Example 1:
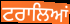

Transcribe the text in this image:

ਟਰਾਲਿਆਂ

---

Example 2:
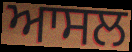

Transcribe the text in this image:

ਆਸਲ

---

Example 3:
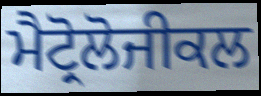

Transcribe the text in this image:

ਮੈਟ੍ਰੋਲੋਜੀਕਲ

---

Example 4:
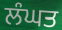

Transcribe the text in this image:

ਲੰਘਤ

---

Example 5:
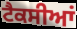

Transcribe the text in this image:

ਟੈਕਸੀਆਂ